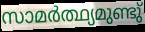
സാമർത്ഥ്യമുണ്ടു്